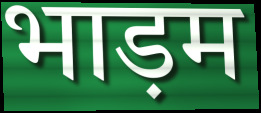
भाड़म